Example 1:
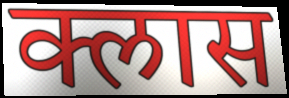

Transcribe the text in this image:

क्लास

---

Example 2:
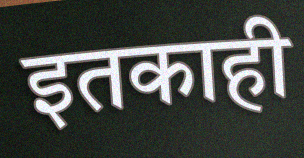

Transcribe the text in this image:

इतकाही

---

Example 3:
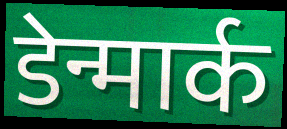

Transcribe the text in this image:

डेन्मार्क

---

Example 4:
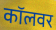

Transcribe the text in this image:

कॉलवर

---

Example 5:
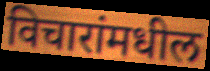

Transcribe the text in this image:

विचारांमधील